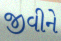
જીવીને